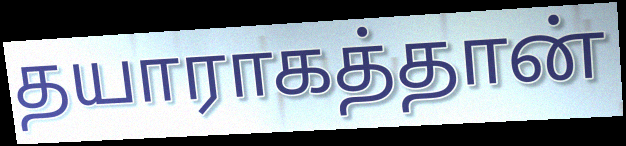
தயாராகத்தான்